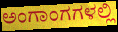
ಅಂಗಾಂಗಗಳಲ್ಲಿ